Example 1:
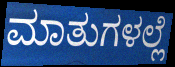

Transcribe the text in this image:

ಮಾತುಗಳಲ್ಲೆ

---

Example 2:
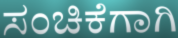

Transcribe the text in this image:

ಸಂಚಿಕೆಗಾಗಿ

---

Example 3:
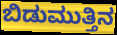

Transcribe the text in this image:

ಬಿಡುಮುತ್ತಿನ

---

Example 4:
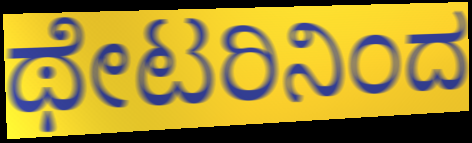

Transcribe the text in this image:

ಥೇಟರಿನಿಂದ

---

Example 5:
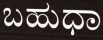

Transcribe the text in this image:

ಬಹುಧಾ